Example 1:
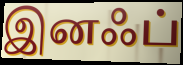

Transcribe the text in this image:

இனஃப்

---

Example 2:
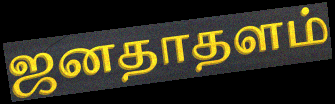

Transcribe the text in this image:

ஜனதாதளம்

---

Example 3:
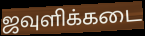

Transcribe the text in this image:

ஜவுளிக்கடை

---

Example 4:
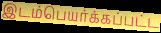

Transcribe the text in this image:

இடம்பெயர்க்கப்பட்ட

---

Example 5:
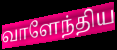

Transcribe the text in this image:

வாளேந்திய